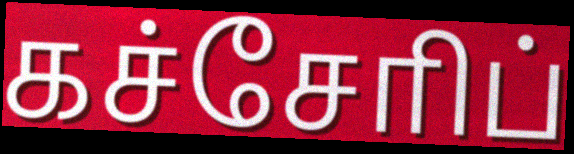
கச்சேரிப்